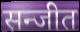
सन्जीत